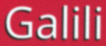
Galili